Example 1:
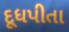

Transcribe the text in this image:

દૂધપીતા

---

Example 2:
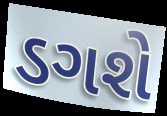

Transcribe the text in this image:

ડગશે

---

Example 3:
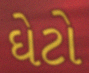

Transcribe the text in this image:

ઘેટો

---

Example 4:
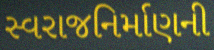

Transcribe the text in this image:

સ્વરાજનિર્માણની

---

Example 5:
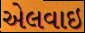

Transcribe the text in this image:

એલવાઇ